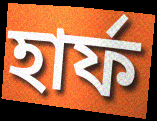
হার্ফ